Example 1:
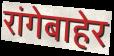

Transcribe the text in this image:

रांगेबाहेर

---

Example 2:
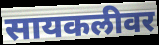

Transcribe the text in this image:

सायकलीवर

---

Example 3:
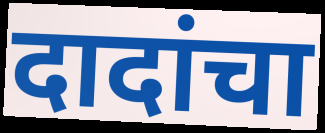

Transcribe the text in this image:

दादांचा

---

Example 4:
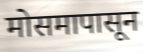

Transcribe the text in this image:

मोसमापासून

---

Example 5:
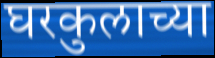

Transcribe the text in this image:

घरकुलाच्या